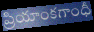
ప్రియాంకగాంధీ